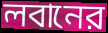
লবানের